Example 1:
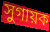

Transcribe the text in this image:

সুগায়ক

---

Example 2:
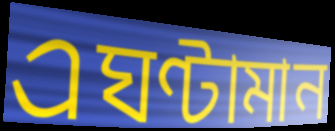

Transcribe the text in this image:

এঘণ্টামান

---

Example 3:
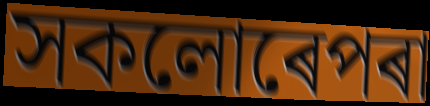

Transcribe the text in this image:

সকলোৰেপৰা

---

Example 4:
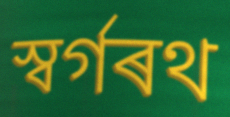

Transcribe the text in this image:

স্বৰ্গৰথ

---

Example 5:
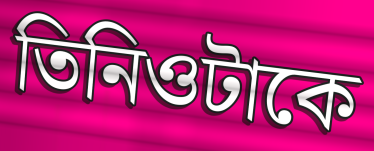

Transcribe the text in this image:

তিনিওটাকে